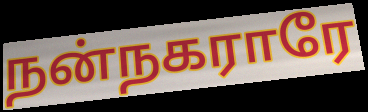
நன்நகராரே